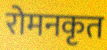
रोमनकृत